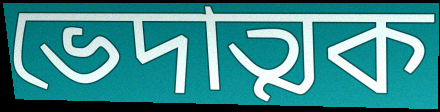
ভেদাত্মক